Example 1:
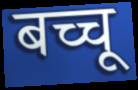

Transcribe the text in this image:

बच्चू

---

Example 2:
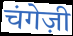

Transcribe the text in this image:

चंगेज़ी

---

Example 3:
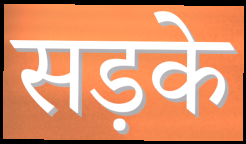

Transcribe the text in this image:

सड़के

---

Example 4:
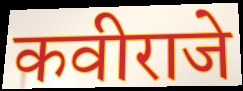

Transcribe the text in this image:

कवीराजे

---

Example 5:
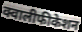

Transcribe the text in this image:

क्वालीफीकेशन